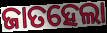
ଜାତହେଲା